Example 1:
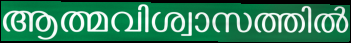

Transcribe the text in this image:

ആത്മവിശ്വാസത്തിൽ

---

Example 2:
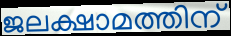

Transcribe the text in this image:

ജലക്ഷാമത്തിന്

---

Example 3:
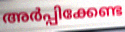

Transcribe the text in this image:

അർപ്പിക്കേണ്ട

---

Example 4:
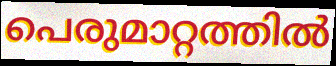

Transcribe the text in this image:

പെരുമാറ്റത്തിൽ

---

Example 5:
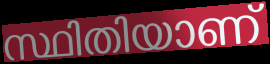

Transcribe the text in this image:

സ്ഥിതിയാണ്